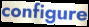
configure